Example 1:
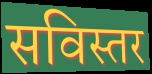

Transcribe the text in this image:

सविस्तर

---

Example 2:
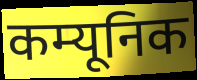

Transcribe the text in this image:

कम्यूनिक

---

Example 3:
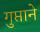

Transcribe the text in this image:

गुप्ताने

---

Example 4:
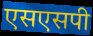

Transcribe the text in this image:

एसएसपी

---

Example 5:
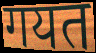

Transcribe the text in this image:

गयत